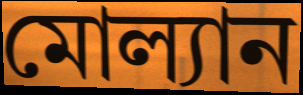
মোল্যান